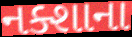
નક્શાના